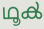
ഥൂൿ